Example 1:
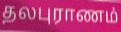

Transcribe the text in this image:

தலபுராணம்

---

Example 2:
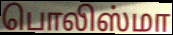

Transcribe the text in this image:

பொலிஸ்மா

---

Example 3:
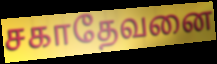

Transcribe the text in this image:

சகாதேவனை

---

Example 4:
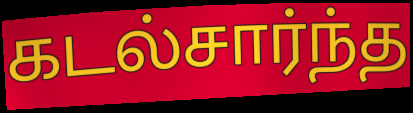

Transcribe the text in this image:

கடல்சார்ந்த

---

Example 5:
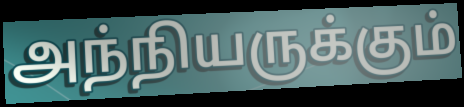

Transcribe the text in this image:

அந்நியருக்கும்